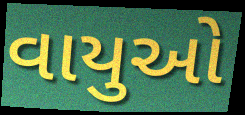
વાયુઓ